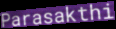
Parasakthi